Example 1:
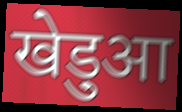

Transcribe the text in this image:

खेड़ुआ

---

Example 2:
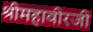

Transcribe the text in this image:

श्रीमहावीरजी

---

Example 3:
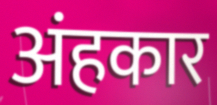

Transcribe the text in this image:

अंहकार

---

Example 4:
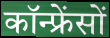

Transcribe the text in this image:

कॉन्फ्रेंसों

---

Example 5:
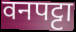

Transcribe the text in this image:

वनपट्टा